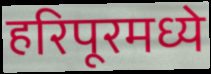
हरिपूरमध्ये